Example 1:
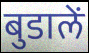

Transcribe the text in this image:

बुडालें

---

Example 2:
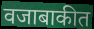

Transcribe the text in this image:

वजाबाकीत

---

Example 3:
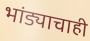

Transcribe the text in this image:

भांड्याचाही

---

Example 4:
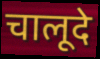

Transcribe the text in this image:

चालूदे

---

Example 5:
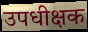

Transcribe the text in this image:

उपधीक्षक